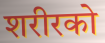
शरीरको